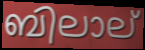
ബിലാല്